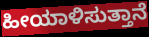
ಹೀಯಾಳಿಸುತ್ತಾನೆ